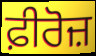
ਫ਼ੀਰੋਜ਼